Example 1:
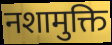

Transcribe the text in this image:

नशामुक्ति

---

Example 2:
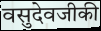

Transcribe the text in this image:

वसुदेवजीकी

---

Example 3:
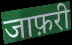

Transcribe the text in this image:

जाफ़री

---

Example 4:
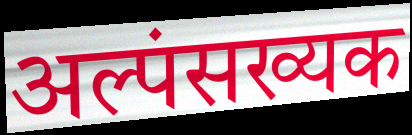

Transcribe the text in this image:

अल्पंसख्यक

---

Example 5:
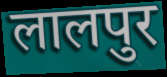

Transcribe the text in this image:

लालपुर